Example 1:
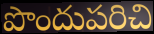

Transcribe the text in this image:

పొందుపరిచి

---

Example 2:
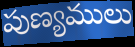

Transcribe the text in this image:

పుణ్యములు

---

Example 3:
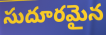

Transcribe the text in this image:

సుదూరమైన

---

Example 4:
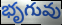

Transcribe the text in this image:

భృగువు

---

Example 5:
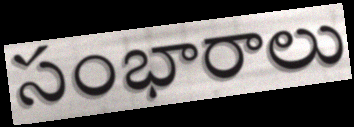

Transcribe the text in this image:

సంభారాలు